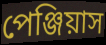
পেঞ্জিয়াস